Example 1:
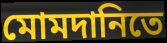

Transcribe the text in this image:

মোমদানিতে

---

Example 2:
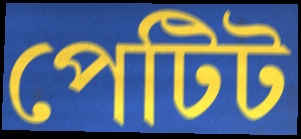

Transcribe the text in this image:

পেটিট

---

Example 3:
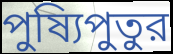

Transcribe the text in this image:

পুষ্যিপুতুর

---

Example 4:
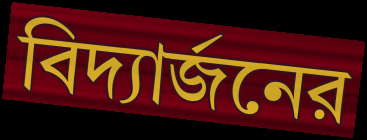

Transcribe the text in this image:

বিদ্যার্জনের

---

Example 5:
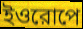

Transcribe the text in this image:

ইওরোপে